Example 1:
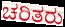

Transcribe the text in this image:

ಚರಿತರು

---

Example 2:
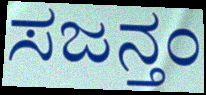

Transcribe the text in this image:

ಸಜನ್ತಂ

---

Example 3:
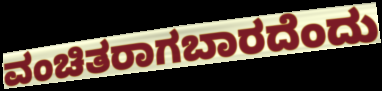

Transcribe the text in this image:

ವಂಚಿತರಾಗಬಾರದೆಂದು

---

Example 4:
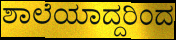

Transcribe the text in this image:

ಶಾಲೆಯಾದ್ದರಿಂದ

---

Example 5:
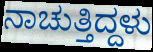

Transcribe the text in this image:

ನಾಚುತ್ತಿದ್ದಳು